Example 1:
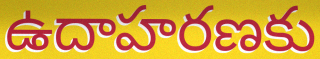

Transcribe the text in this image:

ఉదాహరణకు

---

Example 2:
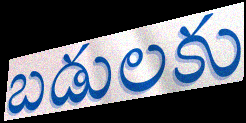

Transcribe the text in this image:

బడులకు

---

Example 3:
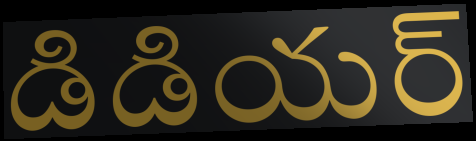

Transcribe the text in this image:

డిడియర్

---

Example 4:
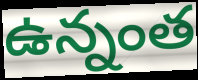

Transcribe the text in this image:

ఉన్నంత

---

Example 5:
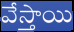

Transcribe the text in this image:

వేస్తాయి